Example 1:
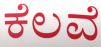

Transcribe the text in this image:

ಕೆಲವೆ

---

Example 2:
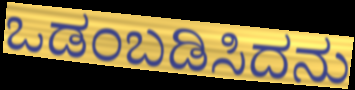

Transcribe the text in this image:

ಒಡಂಬಡಿಸಿದನು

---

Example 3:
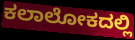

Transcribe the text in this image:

ಕಲಾಲೋಕದಲ್ಲಿ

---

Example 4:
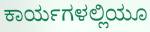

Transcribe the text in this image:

ಕಾರ್ಯಗಳಲ್ಲಿಯೂ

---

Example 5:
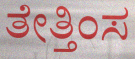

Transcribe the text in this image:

ತೇತ್ತಿಂಸ